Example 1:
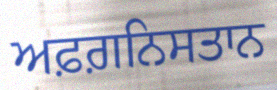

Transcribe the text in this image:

ਅਫ਼ਗ਼ਨਿਸਤਾਨ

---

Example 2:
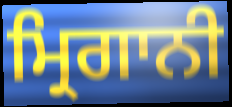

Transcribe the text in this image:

ਮ੍ਰਿਗਾਨੀ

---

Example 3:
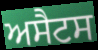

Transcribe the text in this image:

ਅਸੈਟਸ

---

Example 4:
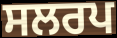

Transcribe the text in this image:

ਸਲਰਪ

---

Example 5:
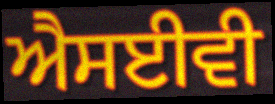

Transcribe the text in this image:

ਐਸਈਵੀ